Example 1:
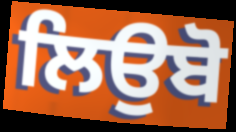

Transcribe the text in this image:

ਲਿਉਬੋ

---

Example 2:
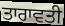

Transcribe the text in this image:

ਤਾਰਾਵਤੀ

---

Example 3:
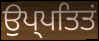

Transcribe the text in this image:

ਉਪ੍ਪਤਿਤਂ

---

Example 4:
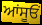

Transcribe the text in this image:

ਆਂਸੂਓਂ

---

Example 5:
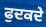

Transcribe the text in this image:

ਫੁਦਕਦੇ